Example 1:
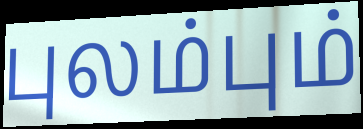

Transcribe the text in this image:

புலம்பும்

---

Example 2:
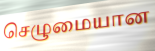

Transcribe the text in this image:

செழுமையான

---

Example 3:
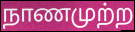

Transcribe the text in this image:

நாணமுற்ற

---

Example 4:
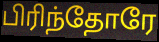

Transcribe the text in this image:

பிரிந்தோரே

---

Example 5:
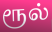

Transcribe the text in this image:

ரூல்